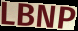
LBNP